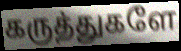
கருத்துகளே